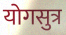
योगसुत्र